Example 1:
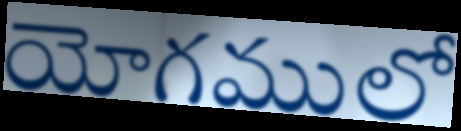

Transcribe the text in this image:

యోగములో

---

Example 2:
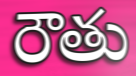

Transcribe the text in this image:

రౌతు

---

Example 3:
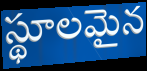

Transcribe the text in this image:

స్థూలమైన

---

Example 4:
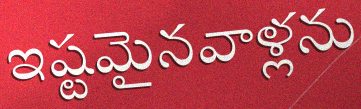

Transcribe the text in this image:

ఇష్టమైనవాళ్లను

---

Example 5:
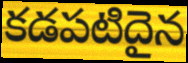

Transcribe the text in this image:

కడపటిదైన